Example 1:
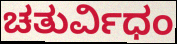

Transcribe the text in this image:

ಚತುರ್ವಿಧಂ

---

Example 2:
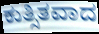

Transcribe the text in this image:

ಕುತ್ಸಿತವಾದ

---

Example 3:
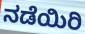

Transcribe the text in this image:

ನಡೆಯಿರಿ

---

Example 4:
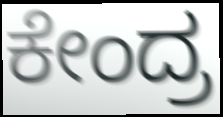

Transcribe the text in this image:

ಕೇಂದ್ರ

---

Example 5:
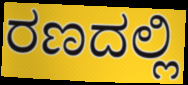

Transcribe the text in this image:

ರಣದಲ್ಲಿ